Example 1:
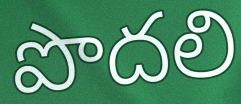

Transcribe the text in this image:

పొదలి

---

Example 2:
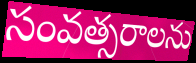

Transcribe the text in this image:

సంవత్సరాలను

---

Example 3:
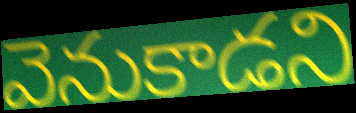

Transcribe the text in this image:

వెనుకాడని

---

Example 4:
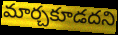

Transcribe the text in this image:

మార్చకూడదని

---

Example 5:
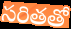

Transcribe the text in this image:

సరితతో